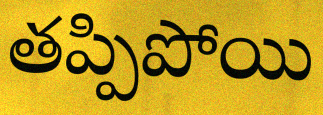
తప్పిపోయి